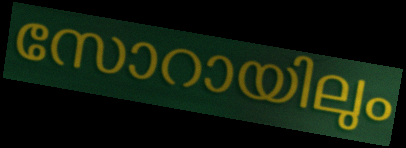
സോറായിലും